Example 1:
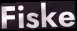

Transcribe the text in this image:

Fiske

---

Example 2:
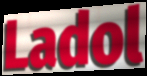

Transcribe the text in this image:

Ladol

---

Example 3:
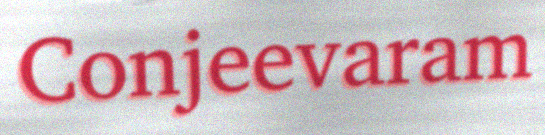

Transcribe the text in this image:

Conjeevaram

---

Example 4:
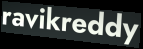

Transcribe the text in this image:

ravikreddy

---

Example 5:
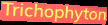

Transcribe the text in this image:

Trichophyton